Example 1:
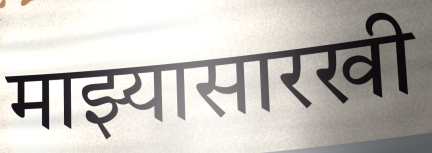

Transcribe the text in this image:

माझ्यासारखी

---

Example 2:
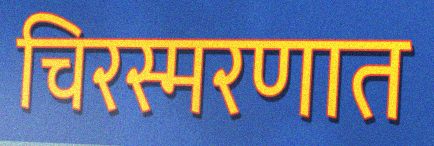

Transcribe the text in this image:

चिरस्मरणात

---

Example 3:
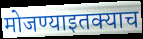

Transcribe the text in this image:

मोजण्याइतक्याच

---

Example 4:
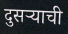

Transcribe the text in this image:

दुसऱ्याची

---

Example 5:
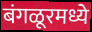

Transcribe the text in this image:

बंगळूरमध्ये